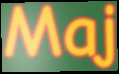
Maj